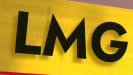
LMG